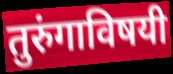
तुरुंगाविषयी